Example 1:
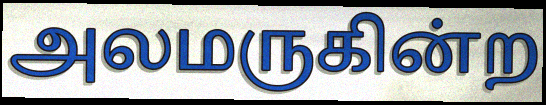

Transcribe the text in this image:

அலமருகின்ற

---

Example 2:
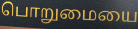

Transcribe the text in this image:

பொறுமையை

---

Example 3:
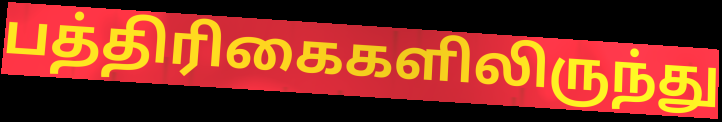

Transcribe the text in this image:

பத்திரிகைகளிலிருந்து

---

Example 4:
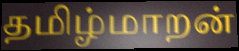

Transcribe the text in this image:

தமிழ்மாறன்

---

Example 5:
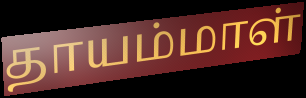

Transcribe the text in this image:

தாயம்மாள்